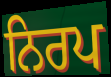
ਨਿਰਪ